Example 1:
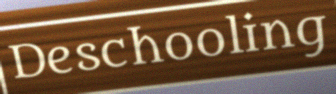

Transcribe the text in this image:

Deschooling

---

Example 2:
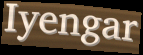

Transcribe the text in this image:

Iyengar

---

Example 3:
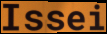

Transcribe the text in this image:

Issei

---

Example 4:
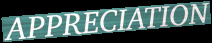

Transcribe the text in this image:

APPRECIATION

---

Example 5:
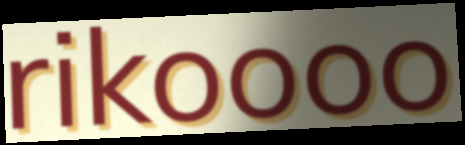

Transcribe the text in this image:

rikoooo